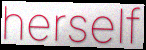
herself